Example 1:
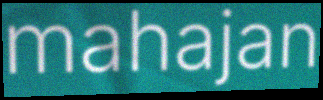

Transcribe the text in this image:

mahajan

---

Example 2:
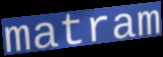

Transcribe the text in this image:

matram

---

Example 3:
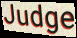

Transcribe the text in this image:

Judge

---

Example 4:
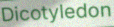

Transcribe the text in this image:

Dicotyledon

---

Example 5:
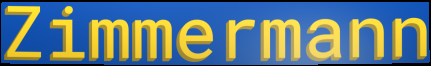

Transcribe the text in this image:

Zimmermann